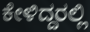
ಕೇಳಿದ್ದರಲ್ಲಿ